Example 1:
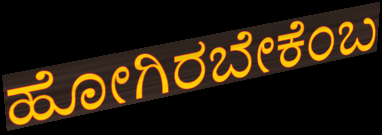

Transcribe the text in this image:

ಹೋಗಿರಬೇಕೆಂಬ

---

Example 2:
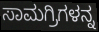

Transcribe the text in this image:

ಸಾಮಗ್ರಿಗಳನ್ನ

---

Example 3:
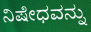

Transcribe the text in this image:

ನಿಷೇಧವನ್ನು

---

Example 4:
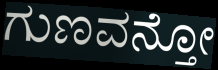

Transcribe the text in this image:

ಗುಣವನ್ತೋ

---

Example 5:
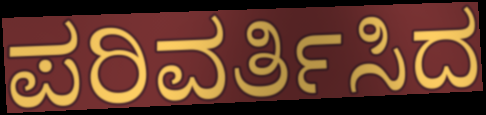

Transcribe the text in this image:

ಪರಿವರ್ತಿಸಿದ